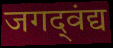
जगद्‌वंद्य